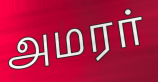
அமரர்